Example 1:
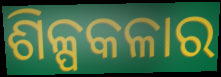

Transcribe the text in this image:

ଶିଳ୍ପକଳାର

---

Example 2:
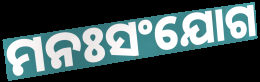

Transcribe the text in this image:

ମନଃସଂଯୋଗ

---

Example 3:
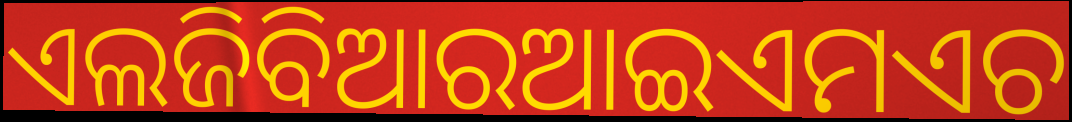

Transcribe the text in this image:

ଏଲଜିବିଆରଆଇଏମଏଚ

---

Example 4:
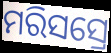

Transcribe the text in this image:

ମରିସସ୍ରେ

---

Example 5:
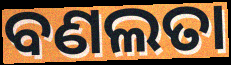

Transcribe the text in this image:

ବଣଲତା